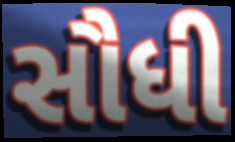
સૌધી